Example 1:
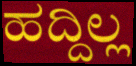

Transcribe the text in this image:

ಹದ್ದಿಲ್ಲ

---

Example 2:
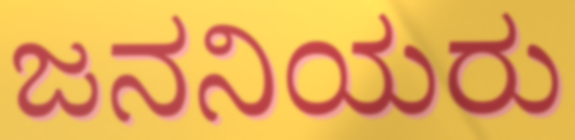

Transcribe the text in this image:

ಜನನಿಯರು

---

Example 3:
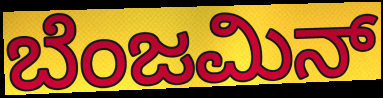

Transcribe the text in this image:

ಬೆಂಜಮಿನ್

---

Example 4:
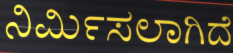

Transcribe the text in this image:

ನಿರ್ಮಿಸಲಾಗಿದೆ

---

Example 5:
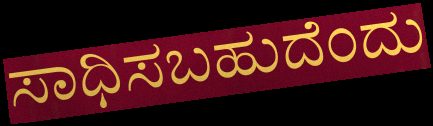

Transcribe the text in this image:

ಸಾಧಿಸಬಹುದೆಂದು